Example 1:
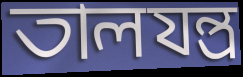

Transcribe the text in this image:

তালযন্ত্র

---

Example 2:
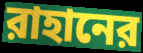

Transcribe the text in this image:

রাহানের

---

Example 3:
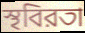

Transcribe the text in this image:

স্থবিরতা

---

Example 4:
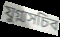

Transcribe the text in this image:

যুগ্মসচিব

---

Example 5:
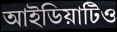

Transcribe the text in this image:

আইডিয়াটিও